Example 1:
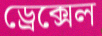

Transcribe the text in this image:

ড্রেক্সেল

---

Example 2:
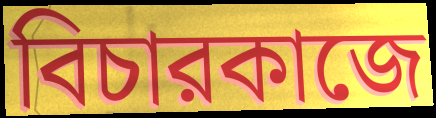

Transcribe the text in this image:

বিচারকাজে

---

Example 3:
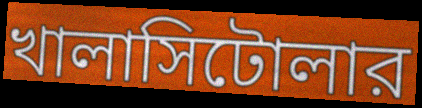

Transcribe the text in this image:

খালাসিটোলার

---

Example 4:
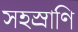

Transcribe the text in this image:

সহস্রাণি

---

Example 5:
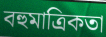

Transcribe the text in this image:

বহুমাত্রিকতা